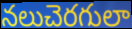
నలుచెరగులా